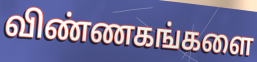
விண்ணகங்களை